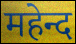
महेन्द